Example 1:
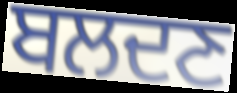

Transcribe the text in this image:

ਬਲਦਣ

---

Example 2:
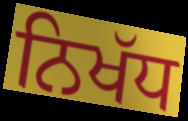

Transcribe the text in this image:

ਨਿਖੱਧ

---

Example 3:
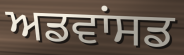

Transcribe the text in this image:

ਅਡਵਾਂਸਡ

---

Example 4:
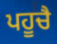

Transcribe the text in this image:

ਪਹੂਚੈ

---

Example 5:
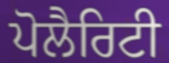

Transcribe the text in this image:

ਪੋਲੈਰਿਟੀ